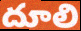
దూలి